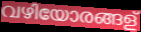
വഴിയോരങ്ങള്